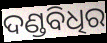
ଦଣ୍ଡବିଧିର